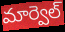
మార్వెల్